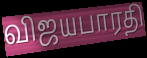
விஜயபாரதி